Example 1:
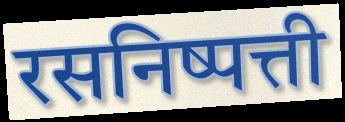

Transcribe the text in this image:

रसनिष्पत्ती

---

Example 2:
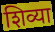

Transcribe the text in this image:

शिव्या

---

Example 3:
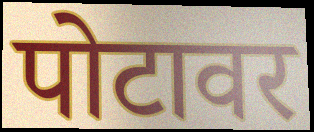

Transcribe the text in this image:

पोटावर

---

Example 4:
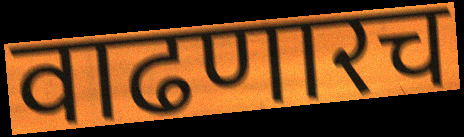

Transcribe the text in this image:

वाढणारच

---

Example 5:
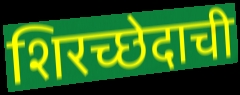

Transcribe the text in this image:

शिरच्छेदाची